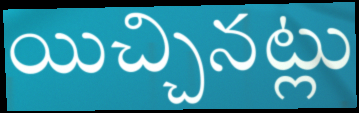
యిచ్చినట్లు